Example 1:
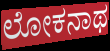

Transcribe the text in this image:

ಲೋಕನಾಥ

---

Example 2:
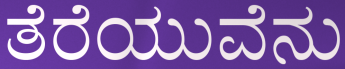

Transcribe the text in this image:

ತೆರೆಯುವೆನು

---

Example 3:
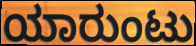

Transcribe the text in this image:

ಯಾರುಂಟು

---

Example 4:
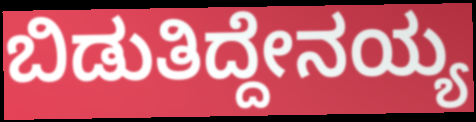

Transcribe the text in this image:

ಬಿಡುತಿದ್ದೇನಯ್ಯ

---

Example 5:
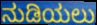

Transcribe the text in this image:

ನುಡಿಯಲು